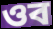
ওব